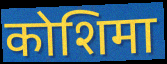
कोशिमा